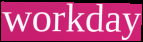
workday